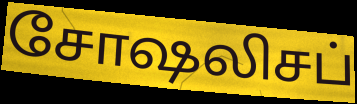
சோஷலிசப்